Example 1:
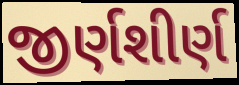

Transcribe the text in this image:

જીર્ણશીર્ણ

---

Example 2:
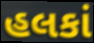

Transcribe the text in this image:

હલકાં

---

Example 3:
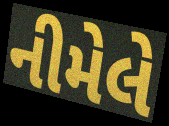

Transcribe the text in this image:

નીમેલે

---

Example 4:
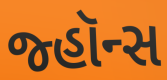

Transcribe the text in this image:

જ્હૉન્સ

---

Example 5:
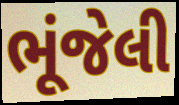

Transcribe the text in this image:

ભૂંજેલી